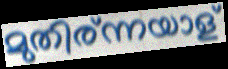
മുതിര്ന്നയാള്